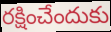
రక్షించేందుకు